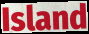
Island